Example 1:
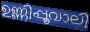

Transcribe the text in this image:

ഉണ്ണിപ്പൂവാലി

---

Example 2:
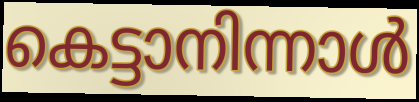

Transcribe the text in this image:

കെട്ടാനിന്നാൾ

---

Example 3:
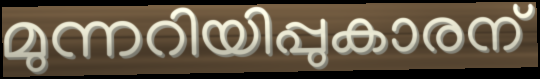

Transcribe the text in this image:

മുന്നറിയിപ്പുകാരന്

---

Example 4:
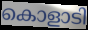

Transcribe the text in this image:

കൊളാടി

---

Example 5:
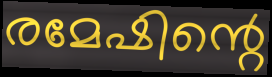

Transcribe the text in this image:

രമേഷിന്റെ